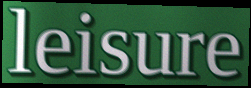
leisure